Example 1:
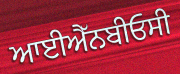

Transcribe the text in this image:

ਆਈਐੱਨਬੀਓਸੀ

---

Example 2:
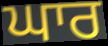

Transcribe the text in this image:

ਘਾਰ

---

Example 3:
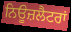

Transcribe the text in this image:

ਨਿਊਜ਼ਲੈਟਰਾਂ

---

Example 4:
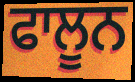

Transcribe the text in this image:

ਫਾਲੂਨ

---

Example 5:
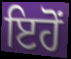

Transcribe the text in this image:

ਇਹੋਂ